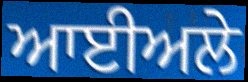
ਆਈਅਲੇ